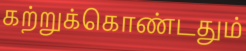
கற்றுக்கொண்டதும்